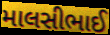
માલસીભાઈ